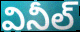
వినీల్